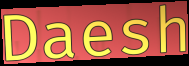
Daesh